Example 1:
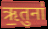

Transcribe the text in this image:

ऋ॒तुना॑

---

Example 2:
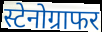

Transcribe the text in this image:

स्टेनोग्राफर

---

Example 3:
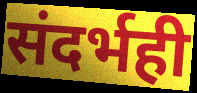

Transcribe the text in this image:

संदर्भही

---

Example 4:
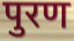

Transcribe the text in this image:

पुरण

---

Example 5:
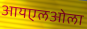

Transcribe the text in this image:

आयएलओला